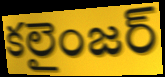
కలైంజర్